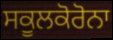
ਸਕੂਲਕੋਰੋਨਾ